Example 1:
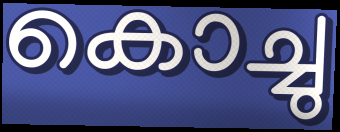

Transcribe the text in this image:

കൊച്ചു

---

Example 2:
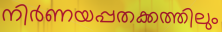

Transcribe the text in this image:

നിർണയപ്പതക്കത്തിലും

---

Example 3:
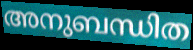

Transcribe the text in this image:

അനുബന്ധിത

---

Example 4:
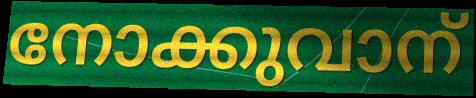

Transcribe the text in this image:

നോക്കുവാന്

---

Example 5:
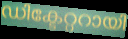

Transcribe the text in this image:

ഡിക്ടേറ്ററായി